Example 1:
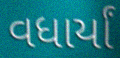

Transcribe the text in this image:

વધાર્યાં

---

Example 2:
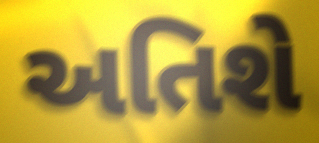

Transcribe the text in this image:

અતિશે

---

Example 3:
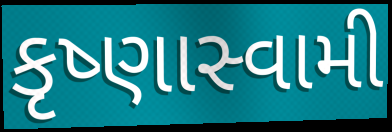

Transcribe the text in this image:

કૃષ્ણાસ્વામી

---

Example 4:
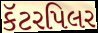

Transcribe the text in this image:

કૅટરપિલર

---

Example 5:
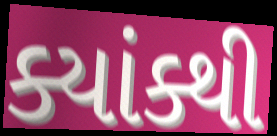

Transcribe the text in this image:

ક્યાંક્થી